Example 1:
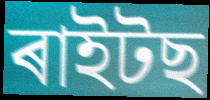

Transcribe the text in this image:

ৰাইটছ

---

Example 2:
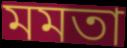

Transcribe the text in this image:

মমতা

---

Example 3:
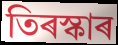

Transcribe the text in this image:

তিৰস্কাৰ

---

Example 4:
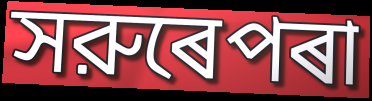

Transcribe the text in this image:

সৰুৰেপৰা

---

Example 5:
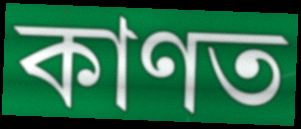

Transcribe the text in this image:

কাণত